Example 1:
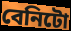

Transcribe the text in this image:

বেনিটো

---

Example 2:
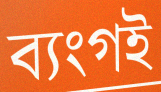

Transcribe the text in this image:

ব্যংগই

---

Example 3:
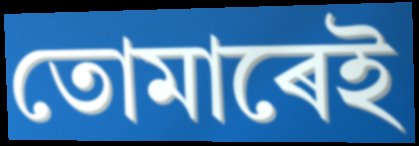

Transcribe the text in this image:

তোমাৰেই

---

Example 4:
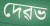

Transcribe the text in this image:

দেৱভ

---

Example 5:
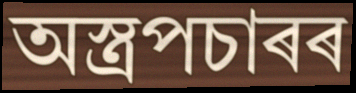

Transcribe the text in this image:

অস্ত্ৰপচাৰৰ